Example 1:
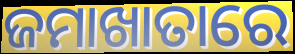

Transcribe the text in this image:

ଜମାଖାତାରେ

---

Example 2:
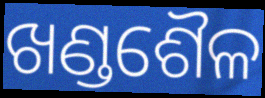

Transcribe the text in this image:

ଖଣ୍ଡଶୈଳ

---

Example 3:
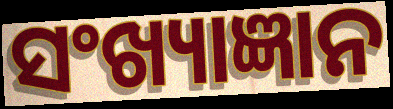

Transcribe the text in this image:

ସଂଖ୍ୟାଜ୍ଞାନ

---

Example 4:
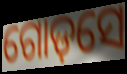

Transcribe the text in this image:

ଗୋଡ଼ସେ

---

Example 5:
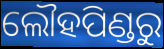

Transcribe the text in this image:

ଲୌହପିଣ୍ଡରୁ